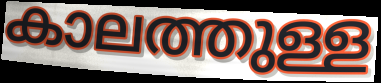
കാലത്തുള്ള